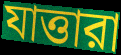
যাত্তারা